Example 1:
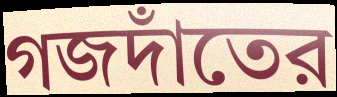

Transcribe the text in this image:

গজদাঁতের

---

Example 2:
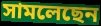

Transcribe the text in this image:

সামলেছেন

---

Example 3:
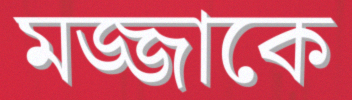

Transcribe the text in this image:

মজ্জাকে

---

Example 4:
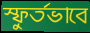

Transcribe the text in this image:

স্ফুর্তভাবে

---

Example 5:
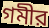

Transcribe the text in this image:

গমীর